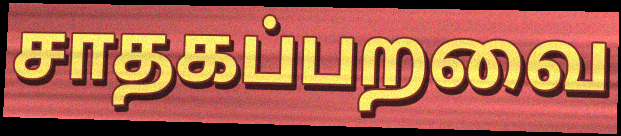
சாதகப்பறவை